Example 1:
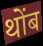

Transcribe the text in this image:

थोंब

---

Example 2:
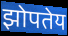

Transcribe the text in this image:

झोपतेय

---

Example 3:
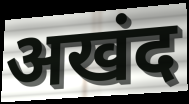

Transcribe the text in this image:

अखंद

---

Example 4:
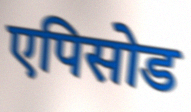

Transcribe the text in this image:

एपिसोड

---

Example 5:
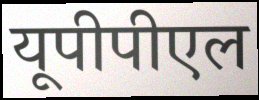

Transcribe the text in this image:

यूपीपीएल